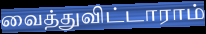
வைத்துவிட்டாராம்